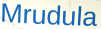
Mrudula